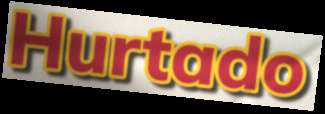
Hurtado